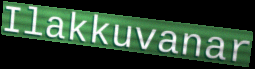
Ilakkuvanar